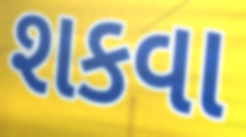
શકવા